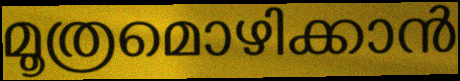
മൂത്രമൊഴിക്കാൻ